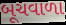
બૂચવાળા